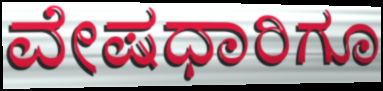
ವೇಷಧಾರಿಗೂ